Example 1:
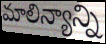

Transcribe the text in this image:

మాలిన్యాన్ని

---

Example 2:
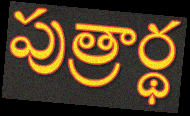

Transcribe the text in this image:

పుత్రార్థ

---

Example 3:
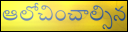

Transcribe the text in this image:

ఆలోచించాల్సిన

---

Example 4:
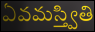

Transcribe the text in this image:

ఏవమస్త్వితి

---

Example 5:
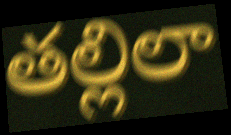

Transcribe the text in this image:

తల్లిలా